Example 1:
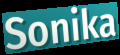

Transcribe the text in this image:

Sonika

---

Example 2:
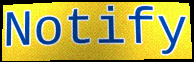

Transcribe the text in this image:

Notify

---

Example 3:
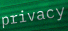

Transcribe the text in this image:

privacy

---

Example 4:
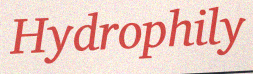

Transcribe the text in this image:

Hydrophily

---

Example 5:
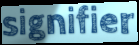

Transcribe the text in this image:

signifier